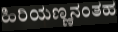
ಹಿರಿಯಣ್ಣನಂತಹ